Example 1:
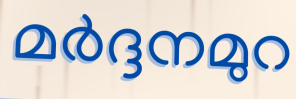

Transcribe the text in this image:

മർദ്ദനമുറ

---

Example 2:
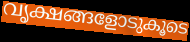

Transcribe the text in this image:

വൃക്ഷങ്ങളോടുകൂടെ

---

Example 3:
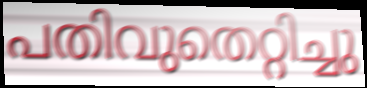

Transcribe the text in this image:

പതിവുതെറ്റിച്ചു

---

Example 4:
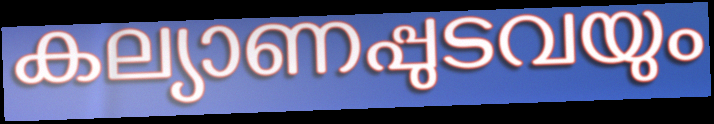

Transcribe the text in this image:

കല്യാണപ്പുടവയും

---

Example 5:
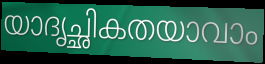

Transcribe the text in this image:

യാദൃച്ഛികതയാവാം